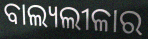
ବାଲ୍ୟଲୀଳାର